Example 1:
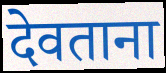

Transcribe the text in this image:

देवताना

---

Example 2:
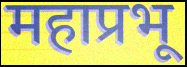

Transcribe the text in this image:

महाप्रभू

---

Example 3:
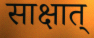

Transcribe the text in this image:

साक्षात्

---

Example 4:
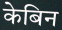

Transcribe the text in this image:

केबिन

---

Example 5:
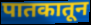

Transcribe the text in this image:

पातकातून